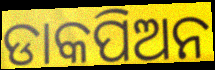
ଡାକପିଅନ